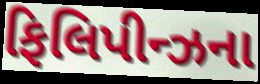
ફિલિપીન્ઝના